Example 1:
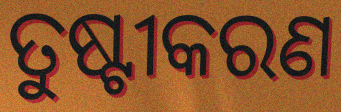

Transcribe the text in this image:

ତୁଷ୍ଟୀକରଣ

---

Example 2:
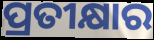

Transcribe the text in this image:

ପ୍ରତୀକ୍ଷାର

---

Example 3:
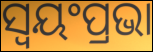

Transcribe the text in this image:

ସ୍ଵୟଂପ୍ରଭା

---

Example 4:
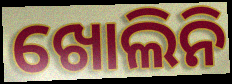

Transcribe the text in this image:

ଖୋଲିନି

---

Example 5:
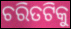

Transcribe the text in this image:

ଚରିତଟିକୁ